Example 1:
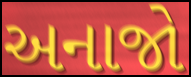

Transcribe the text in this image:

અનાજો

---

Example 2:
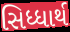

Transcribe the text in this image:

સિધ્ધાર્થ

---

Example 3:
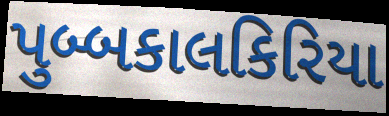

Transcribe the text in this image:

પુબ્બકાલકિરિયા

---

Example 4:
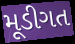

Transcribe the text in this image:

મૂડીગત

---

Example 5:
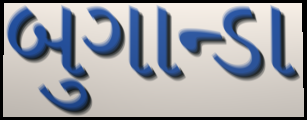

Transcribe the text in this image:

બુગાન્ડા